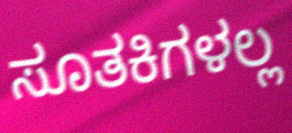
ಸೂತಕಿಗಳಲ್ಲ